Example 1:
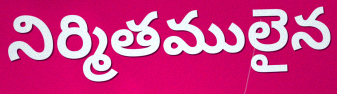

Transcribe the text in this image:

నిర్మితములైన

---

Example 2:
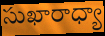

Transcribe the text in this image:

సుఖారాధ్యా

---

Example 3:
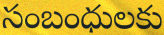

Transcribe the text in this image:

సంబంధులకు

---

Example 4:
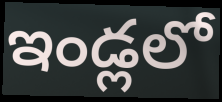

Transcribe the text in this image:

ఇండ్లలో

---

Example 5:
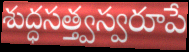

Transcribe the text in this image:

శుద్ధసత్త్వస్వరూపే